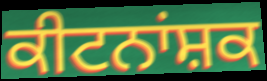
ਕੀਟਨਾਂਸ਼ਕ